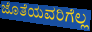
ಜೊತೆಯವರಿಗೆಲ್ಲ